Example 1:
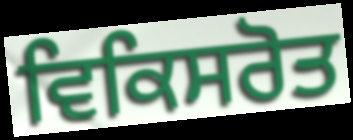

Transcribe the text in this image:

ਵਿਕਿਸਰੋਤ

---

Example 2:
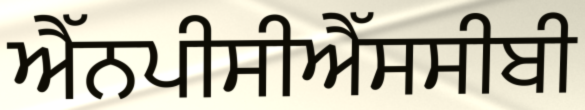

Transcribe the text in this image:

ਐੱਨਪੀਸੀਐੱਸਸੀਬੀ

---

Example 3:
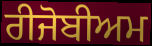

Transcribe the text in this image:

ਰੀਜੋਬੀਅਮ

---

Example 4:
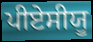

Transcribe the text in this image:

ਪੀਏਸੀਯੂ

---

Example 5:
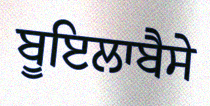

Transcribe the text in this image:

ਬੂਇਲਾਬੈਸੇ